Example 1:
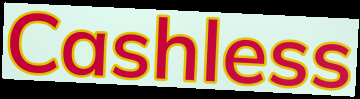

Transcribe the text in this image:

Cashless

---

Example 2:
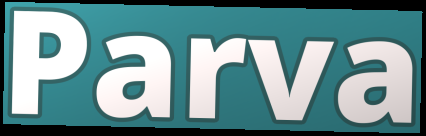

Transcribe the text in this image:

Parva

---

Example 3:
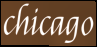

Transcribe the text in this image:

chicago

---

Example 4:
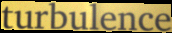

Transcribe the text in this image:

turbulence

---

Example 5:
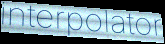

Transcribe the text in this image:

interpolator